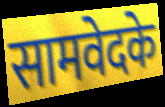
सामवेदके